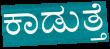
ಕಾಡುತ್ತೆ